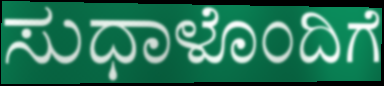
ಸುಧಾಳೊಂದಿಗೆ